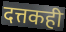
दत्तकही